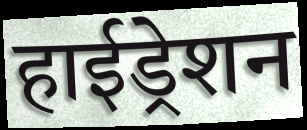
हाईड्रेशन